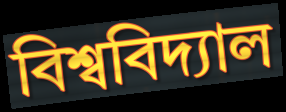
বিশ্ববিদ্যাল